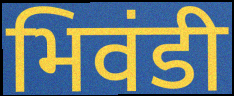
भिवंडी